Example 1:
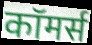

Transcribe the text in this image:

कॉमर्स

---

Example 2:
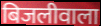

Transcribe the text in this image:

बिजलीवाला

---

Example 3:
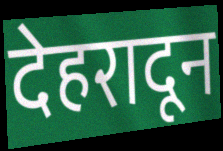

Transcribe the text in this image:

देहरादून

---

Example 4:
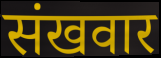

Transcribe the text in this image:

संखवार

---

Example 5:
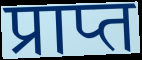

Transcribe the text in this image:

प्राप्‍त